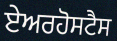
ਏਅਰਹੋਸਟੈਸ